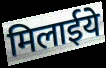
मिलाईये